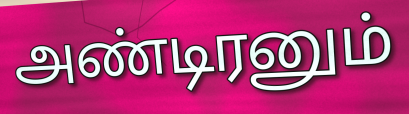
அண்டிரனும்